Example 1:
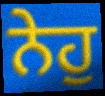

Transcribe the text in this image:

ਨੇਹੁ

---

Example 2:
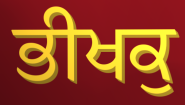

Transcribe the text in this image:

ਭੀਖਕੁ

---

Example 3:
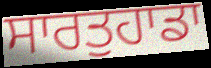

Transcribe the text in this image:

ਸਾਰਤੁਹਾਡਾ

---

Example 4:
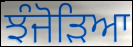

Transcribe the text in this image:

ਝੰਜੋੜਿਆ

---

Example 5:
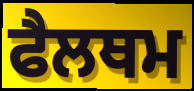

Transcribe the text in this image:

ਫੈਲਥਮ